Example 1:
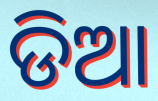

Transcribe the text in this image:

ଡିଆ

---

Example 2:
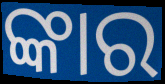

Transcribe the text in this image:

ଙ୍କାର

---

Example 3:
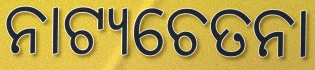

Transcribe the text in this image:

ନାଟ୍ୟଚେତନା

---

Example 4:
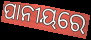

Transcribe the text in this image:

ପାନୀୟରେ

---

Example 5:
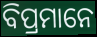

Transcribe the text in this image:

ବିପ୍ରମାନେ